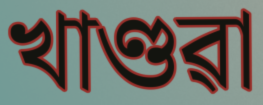
খাণ্ডৱা